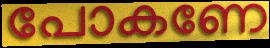
പോകണേ